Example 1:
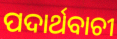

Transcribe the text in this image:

ପଦାର୍ଥବାଚୀ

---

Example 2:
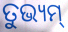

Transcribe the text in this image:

ତୁଭ୍ୟମ୍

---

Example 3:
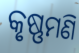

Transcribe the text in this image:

କୃଷ୍ଣମଣି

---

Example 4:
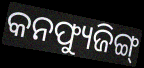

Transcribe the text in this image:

କନଫ୍ୟୁଜିଙ୍ଗ୍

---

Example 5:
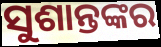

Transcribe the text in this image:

ସୁଶାନ୍ତଙ୍କର